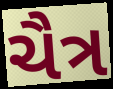
ચૈત્ર